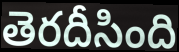
తెరదీసింది